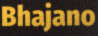
Bhajano